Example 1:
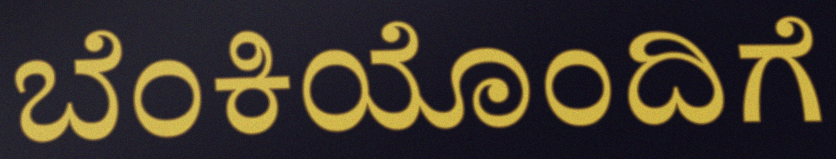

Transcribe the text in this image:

ಬೆಂಕಿಯೊಂದಿಗೆ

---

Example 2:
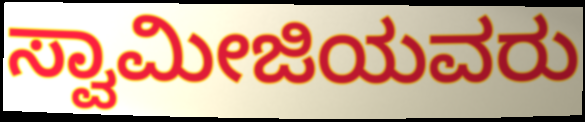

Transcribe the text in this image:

ಸ್ವಾಮೀಜಿಯವರು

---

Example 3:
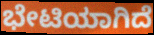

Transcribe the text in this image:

ಭೇಟಿಯಾಗಿದೆ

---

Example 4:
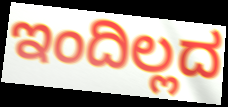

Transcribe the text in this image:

ಇಂದಿಲ್ಲದ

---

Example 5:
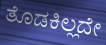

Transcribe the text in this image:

ತೊಡಕಿಲ್ಲದೇ